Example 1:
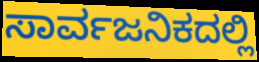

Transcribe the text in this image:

ಸಾರ್ವಜನಿಕದಲ್ಲಿ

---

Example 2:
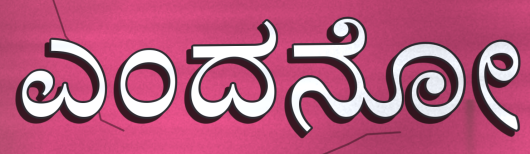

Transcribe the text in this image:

ಎಂದನೋ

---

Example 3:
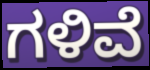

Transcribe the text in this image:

ಗಳಿವೆ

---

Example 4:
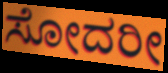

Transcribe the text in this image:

ಸೋದರೀ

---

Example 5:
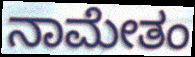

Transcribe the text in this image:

ನಾಮೇತಂ